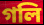
গলি